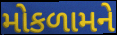
મોકળામને